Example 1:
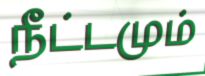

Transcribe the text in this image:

நீட்டமும்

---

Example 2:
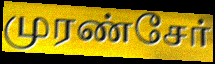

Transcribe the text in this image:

முரண்சேர்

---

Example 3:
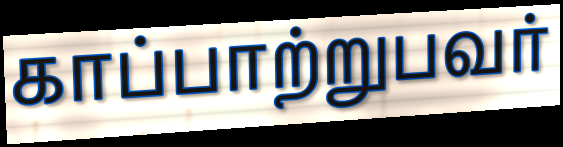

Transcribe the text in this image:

காப்பாற்றுபவர்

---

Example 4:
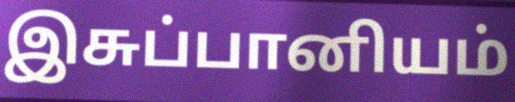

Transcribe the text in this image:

இசுப்பானியம்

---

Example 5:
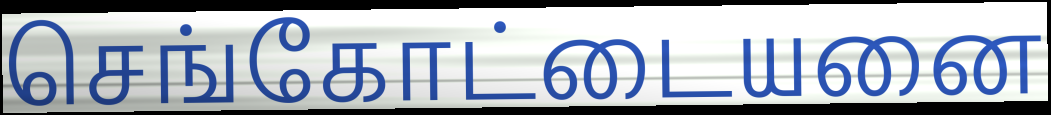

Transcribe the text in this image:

செங்கோட்டையனை